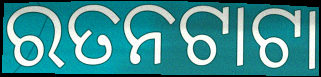
ରତନଟାଟା